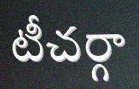
టీచర్గా